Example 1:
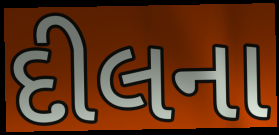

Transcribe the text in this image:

દીલના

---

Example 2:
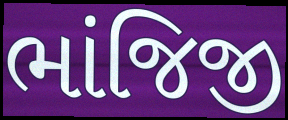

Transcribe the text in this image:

ભાંજિજી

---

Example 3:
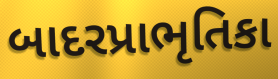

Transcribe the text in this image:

બાદરપ્રાભૃતિકા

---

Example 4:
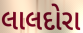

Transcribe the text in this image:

લાલદોરા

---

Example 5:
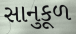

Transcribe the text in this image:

સાનુકૂળ